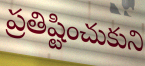
ప్రతిష్టించుకుని